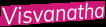
Visvanatha